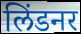
लिंडनर